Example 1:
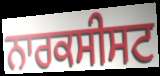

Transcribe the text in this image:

ਨਾਰਕਸੀਸਟ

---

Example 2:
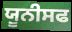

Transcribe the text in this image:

ਯੂਨੀਸਫ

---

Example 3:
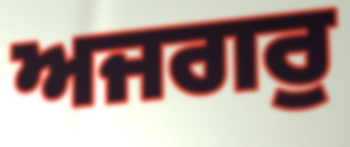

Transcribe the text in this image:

ਅਜਗਰੁ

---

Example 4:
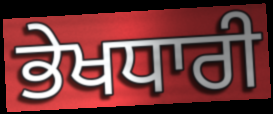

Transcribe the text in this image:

ਭੇਖਧਾਰੀ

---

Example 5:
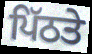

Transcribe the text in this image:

ਪਿੱਠਤੇ